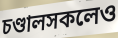
চণ্ডালসকলেও